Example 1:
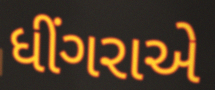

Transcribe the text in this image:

ધીંગરાએ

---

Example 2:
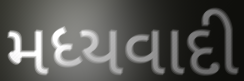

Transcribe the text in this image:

મધ્યવાદી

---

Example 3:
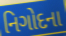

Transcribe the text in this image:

નિગોદના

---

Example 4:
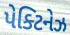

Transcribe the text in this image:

પેક્ટિનેઝ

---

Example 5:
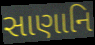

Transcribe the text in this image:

સાણાનિ